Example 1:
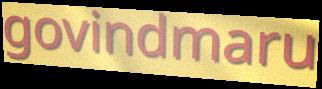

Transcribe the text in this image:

govindmaru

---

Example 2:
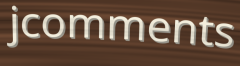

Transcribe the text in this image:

jcomments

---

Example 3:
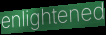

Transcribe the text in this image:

enlightened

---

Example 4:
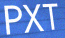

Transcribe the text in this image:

PXT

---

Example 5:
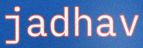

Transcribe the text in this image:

jadhav